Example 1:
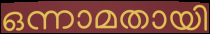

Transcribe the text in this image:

ഒന്നാമതായി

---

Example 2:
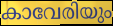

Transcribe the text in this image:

കാവേരിയും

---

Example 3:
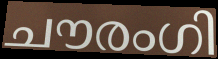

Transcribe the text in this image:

ചൗരംഗി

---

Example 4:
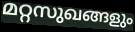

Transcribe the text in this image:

മറ്റസുഖങ്ങളും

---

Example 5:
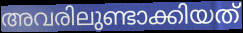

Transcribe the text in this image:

അവരിലുണ്ടാക്കിയത്